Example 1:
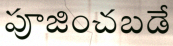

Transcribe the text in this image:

పూజించబడే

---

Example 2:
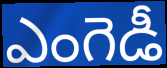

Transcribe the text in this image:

ఎంగెడీ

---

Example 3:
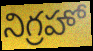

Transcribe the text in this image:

నిగ్రహో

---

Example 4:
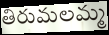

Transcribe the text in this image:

తిరుమలమ్మ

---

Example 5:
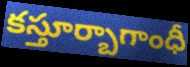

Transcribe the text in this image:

కస్తూర్బాగాంధీ